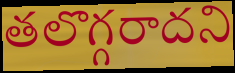
తలొగ్గరాదని